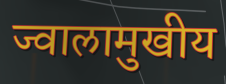
ज्वालामुखीय